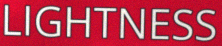
LIGHTNESS